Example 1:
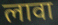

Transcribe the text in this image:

लावा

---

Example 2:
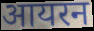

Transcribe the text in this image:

आयरन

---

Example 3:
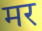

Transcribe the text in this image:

मर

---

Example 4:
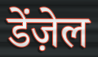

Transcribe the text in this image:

डेंज़ेल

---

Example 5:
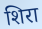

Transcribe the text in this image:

शिरा